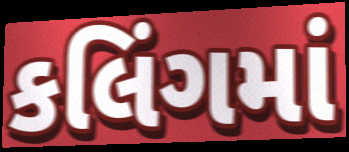
કલિંગમાં